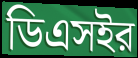
ডিএসইর